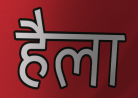
हैला